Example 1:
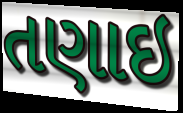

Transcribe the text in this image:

તણાઇ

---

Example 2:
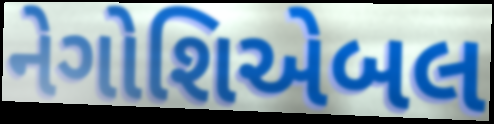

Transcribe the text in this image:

નેગોશિએબલ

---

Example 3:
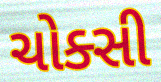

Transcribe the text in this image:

ચોક્સી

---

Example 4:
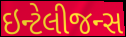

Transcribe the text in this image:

ઇન્ટેલીજન્સ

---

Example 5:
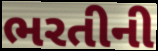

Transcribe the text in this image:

ભરતીની